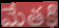
మేతకి